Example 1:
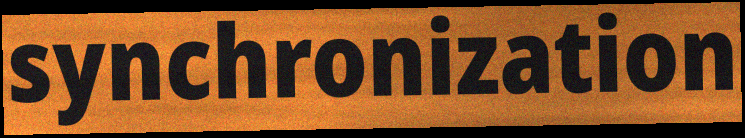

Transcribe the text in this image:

synchronization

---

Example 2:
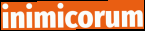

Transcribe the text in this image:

inimicorum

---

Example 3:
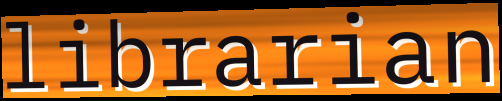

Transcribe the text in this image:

librarian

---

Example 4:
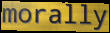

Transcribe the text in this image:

morally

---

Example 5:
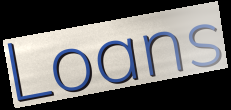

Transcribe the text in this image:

Loans